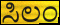
ಸಿಲಂ